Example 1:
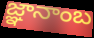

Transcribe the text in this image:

జ్ఞానాంబ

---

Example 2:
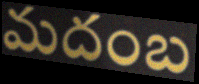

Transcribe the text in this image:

మదంబ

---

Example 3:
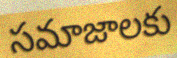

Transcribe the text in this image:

సమాజాలకు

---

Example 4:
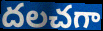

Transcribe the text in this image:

దలచగా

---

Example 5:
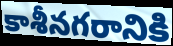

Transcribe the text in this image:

కాశీనగరానికి